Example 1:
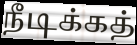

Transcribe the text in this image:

நீடிக்கத்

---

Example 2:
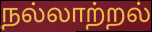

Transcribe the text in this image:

நல்லாற்றல்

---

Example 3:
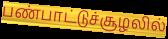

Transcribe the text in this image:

பண்பாட்டுச்சூழலில்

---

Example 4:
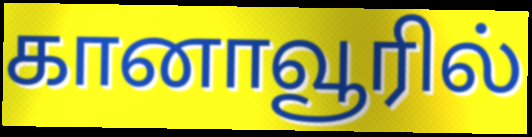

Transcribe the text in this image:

கானாவூரில்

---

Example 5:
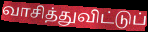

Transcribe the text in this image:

வாசித்துவிட்டுப்